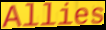
Allies